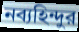
নব্যহিন্দুর